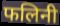
फलिनी